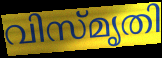
വിസ്മൃതി